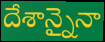
దేశాన్నైనా